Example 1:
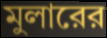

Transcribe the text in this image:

মুলারের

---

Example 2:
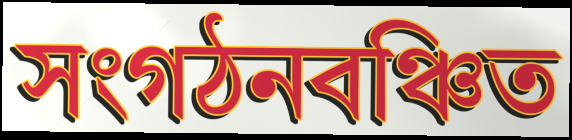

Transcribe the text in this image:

সংগঠনবঞ্চিত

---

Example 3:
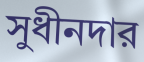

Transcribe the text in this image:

সুধীনদার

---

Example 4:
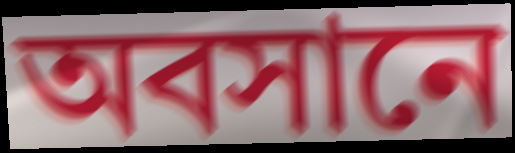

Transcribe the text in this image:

অবসানে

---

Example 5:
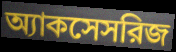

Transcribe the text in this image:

অ্যাকসেসরিজ